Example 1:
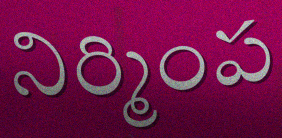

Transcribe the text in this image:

నిర్మింప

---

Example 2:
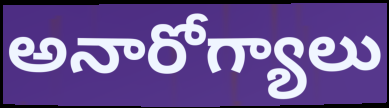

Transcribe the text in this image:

అనారోగ్యాలు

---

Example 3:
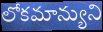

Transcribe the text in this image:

లోకమాన్యుని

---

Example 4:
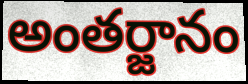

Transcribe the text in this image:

అంతర్జానం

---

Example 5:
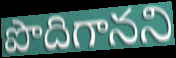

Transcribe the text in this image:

పొదిగానని